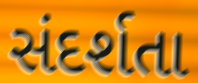
સંદર્શતા